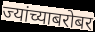
ज्यांच्याबरोबर